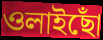
ওলাইছোঁ